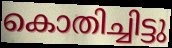
കൊതിച്ചിട്ടു